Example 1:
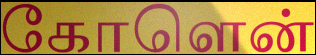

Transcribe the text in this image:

கோளென்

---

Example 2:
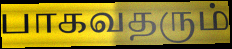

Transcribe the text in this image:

பாகவதரும்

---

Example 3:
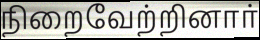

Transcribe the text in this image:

நிறைவேற்றினார்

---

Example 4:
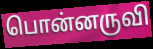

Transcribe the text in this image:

பொன்னருவி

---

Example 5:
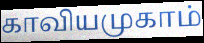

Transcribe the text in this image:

காவியமுகாம்